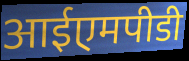
आईएमपीडी